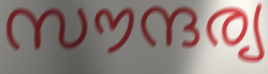
സൗന്ദര്യ